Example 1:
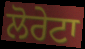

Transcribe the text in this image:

ਲੋਰੇਟਾ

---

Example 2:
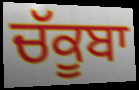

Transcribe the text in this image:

ਚੱਕੂਬਾ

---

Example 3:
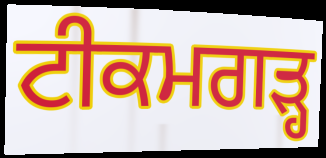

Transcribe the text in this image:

ਟੀਕਮਗੜ੍ਹ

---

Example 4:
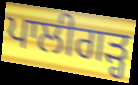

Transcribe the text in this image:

ਪਾਲੀਗੜ੍ਹ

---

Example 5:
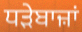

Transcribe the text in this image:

ਧੜੇਬਾਜ਼ਾਂ